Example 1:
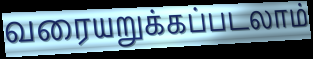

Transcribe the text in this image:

வரையறுக்கப்படலாம்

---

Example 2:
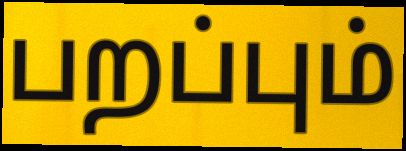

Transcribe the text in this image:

பறப்பும்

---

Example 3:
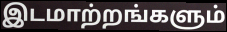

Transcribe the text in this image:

இடமாற்றங்களும்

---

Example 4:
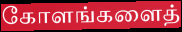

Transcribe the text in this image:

கோளங்களைத்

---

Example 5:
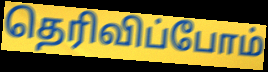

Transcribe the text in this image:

தெரிவிப்போம்